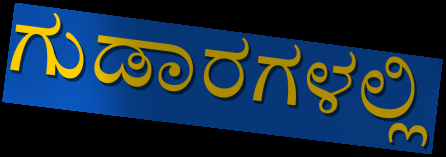
ಗುಡಾರಗಳಲ್ಲಿ